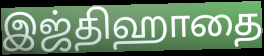
இஜ்திஹாதை